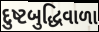
દુષ્ટબુદ્ધિવાળા